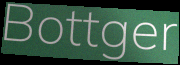
Bottger